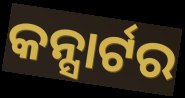
କନ୍ସାର୍ଟର